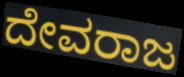
ದೇವರಾಜ